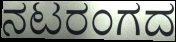
ನಟರಂಗದ